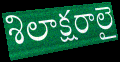
శిలాక్షరాలై